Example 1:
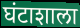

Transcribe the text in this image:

घंटाशाला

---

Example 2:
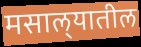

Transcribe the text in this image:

मसाल्यातील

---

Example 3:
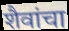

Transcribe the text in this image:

शैवांचा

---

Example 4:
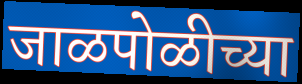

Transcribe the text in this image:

जाळपोळीच्या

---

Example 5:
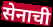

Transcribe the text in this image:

सेनाची